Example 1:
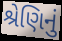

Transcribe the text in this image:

શ્રેણિનું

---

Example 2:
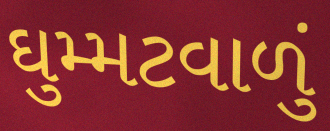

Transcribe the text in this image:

ઘુમ્મટવાળું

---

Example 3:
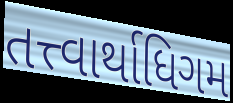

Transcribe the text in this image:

તત્ત્વાર્થાધિગમ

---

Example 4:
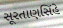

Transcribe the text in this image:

સૂરતાણસિંહે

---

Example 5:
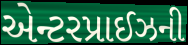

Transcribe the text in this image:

એન્ટરપ્રાઈઝની